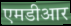
एमडीआर